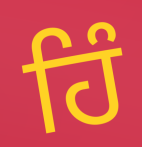
ਹਿੰ